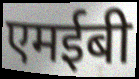
एमईबी